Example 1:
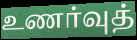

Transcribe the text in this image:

உணர்வுத்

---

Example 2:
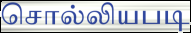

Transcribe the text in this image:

சொல்லியபடி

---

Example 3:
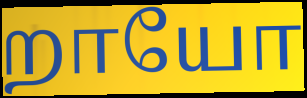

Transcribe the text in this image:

றாயோ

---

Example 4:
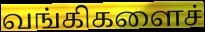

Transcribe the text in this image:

வங்கிகளைச்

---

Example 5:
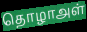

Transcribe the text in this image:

தொழாஅள்